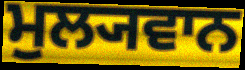
ਮੁਲ੍ਯਵਾਨ